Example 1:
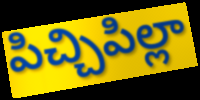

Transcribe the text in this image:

పిచ్చిపిల్లా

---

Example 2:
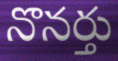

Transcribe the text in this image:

నొనర్తు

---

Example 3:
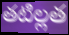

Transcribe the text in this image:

తటిల్లత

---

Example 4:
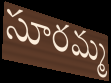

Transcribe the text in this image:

సూరమ్మ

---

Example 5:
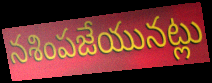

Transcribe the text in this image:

నశింపజేయునట్లు